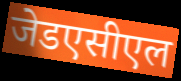
जेडएसीएल